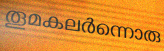
തൂമകലർന്നൊരു